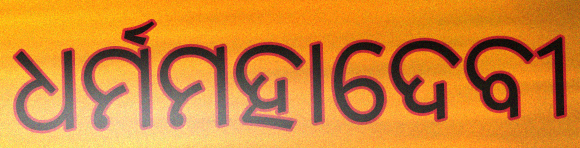
ଧର୍ମମହାଦେବୀ